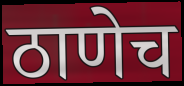
ठाणेच